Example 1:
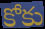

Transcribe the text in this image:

కోకు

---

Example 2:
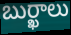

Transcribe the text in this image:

బుర్ఖాలు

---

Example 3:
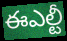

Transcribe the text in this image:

ఈఎల్టీ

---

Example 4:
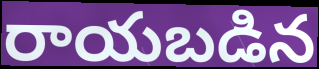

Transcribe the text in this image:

రాయబడిన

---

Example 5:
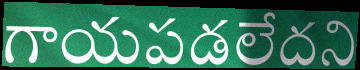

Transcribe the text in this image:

గాయపడలేదని